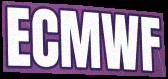
ECMWF